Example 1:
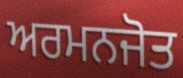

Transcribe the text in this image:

ਅਰਮਨਜੋਤ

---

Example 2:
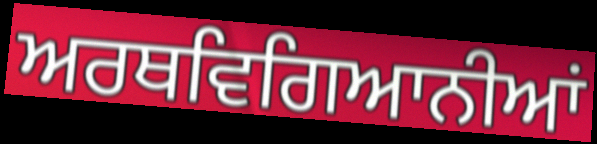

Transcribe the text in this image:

ਅਰਥਵਿਗਿਆਨੀਆਂ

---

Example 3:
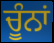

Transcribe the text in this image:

ਚੂੰਨਾਂ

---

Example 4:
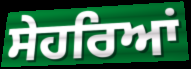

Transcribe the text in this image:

ਸੇਹਰਿਆਂ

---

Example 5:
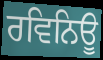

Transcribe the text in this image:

ਰਵਿਨਿਊ